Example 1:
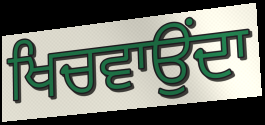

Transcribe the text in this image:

ਖਿਚਵਾਉਂਦਾ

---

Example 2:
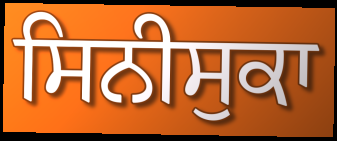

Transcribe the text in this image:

ਸਿਨੀਸੁਕਾ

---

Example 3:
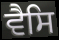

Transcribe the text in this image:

ਵੈਸਿ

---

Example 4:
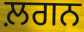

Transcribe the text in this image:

ਲ਼ਗਨ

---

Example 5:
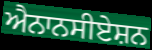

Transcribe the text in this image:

ਐਨਾਨਸੀਏਸ਼ਨ